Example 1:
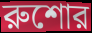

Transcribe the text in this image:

রুশোর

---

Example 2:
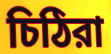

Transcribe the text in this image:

চিঠিরা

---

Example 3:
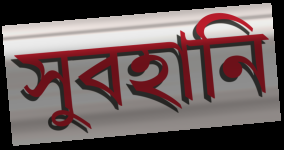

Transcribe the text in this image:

সুবহানি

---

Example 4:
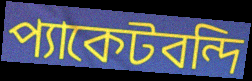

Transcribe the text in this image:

প্যাকেটবন্দি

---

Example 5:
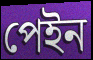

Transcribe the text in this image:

পেইন